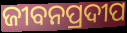
ଜୀବନପ୍ରଦୀପ